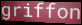
griffon